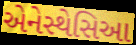
એનેસ્થેસિઆ